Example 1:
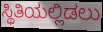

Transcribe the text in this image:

ಸ್ಥಿತಿಯಲ್ಲಿಡಲು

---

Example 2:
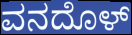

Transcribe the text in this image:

ವನದೊಳ್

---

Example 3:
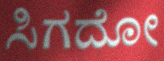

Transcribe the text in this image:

ಸಿಗದೋ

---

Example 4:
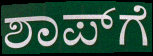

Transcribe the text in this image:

ಶಾಪ್‌ಗೆ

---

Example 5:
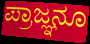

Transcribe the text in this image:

ಪ್ರಾಜ್ಞನೂ